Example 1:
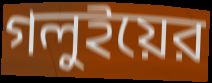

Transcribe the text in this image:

গলুইয়ের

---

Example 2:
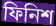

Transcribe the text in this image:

ফিনিশ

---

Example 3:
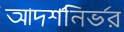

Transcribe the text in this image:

আদর্শনির্ভর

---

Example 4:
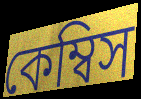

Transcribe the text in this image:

কেম্বিস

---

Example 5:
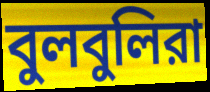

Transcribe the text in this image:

বুলবুলিরা